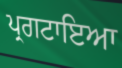
ਪ੍ਰਗਟਾਇਆ